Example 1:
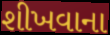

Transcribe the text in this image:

શીખવાના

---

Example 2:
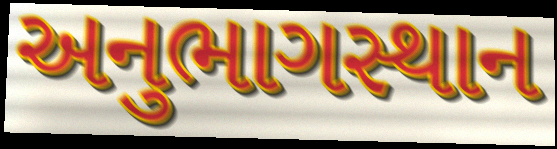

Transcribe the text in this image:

અનુભાગસ્થાન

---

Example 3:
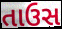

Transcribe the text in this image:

તાઉસ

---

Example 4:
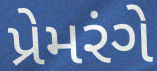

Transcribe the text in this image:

પ્રેમરંગે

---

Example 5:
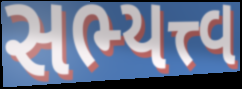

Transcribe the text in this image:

સભ્યત્ત્વ